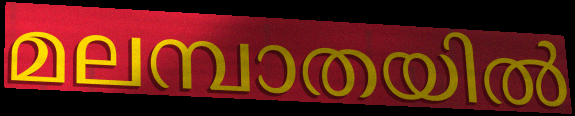
മലമ്പാതയിൽ